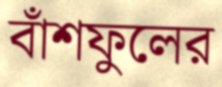
বাঁশফুলের